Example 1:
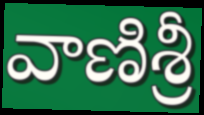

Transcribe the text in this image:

వాణిశ్రీ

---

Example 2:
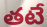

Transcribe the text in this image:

తటే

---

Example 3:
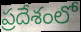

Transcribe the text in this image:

ప్రదేశంలో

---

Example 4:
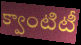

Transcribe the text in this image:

క్వాంటిటీ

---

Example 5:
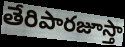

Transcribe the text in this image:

తేరిపారజూస్తా